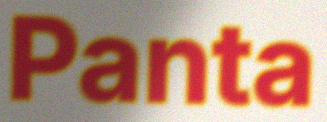
Panta